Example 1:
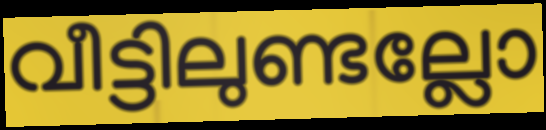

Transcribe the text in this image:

വീട്ടിലുണ്ടല്ലോ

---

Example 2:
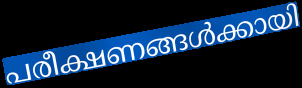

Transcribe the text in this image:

പരീക്ഷണങ്ങൾക്കായി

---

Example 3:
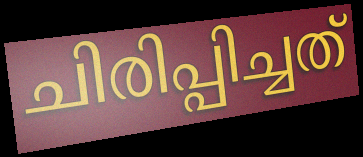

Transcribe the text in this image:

ചിരിപ്പിച്ചത്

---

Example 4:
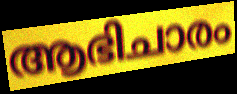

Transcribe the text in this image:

ആഭിചാരം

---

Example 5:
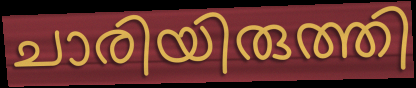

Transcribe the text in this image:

ചാരിയിരുത്തി